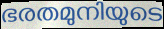
ഭരതമുനിയുടെ